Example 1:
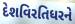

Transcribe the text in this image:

દેશવિરતિધરને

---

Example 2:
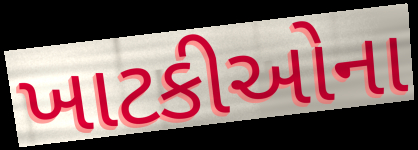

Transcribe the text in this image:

ખાટકીઓના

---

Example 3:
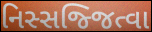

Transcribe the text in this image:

નિસ્સજ્જિત્વા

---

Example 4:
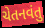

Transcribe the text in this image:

ચેતનવંતુ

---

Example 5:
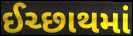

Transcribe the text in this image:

ઈચ્છાથમાં